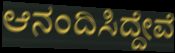
ಆನಂದಿಸಿದ್ದೇವೆ